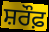
ਸ਼ਰੌਫ਼